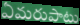
ఏమరుపాటు